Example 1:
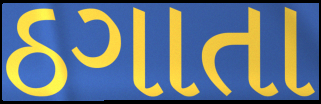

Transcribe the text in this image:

ઠગાતા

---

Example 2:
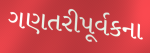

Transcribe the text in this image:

ગણતરીપૂર્વકના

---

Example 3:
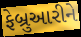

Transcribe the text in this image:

ફેબ્રુઆરીને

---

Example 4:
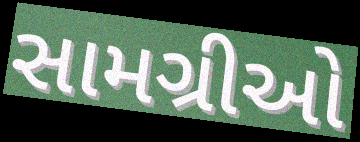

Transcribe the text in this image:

સામગ્રીઓ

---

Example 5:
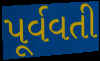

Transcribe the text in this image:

પૂર્વવતી